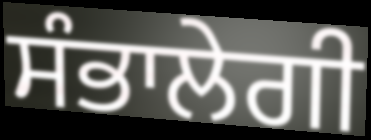
ਸੰਭਾਲੇਗੀ